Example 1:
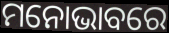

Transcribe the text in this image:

ମନୋଭାବରେ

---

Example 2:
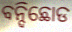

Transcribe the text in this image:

ବନ୍ଦିଛୋଡ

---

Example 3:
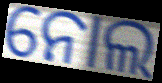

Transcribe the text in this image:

ନୋଲ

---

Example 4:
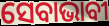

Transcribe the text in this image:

ସେବାଭାବୀ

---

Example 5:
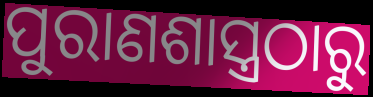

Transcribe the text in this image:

ପୁରାଣଶାସ୍ତ୍ରଠାରୁ